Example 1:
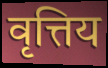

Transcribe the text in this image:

वृत्तिय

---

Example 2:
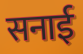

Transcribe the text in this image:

सनाई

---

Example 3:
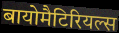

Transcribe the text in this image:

बायोमैटिरियल्स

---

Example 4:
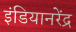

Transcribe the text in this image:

इंडियानरेंद्र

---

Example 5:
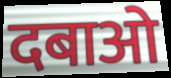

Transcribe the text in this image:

दबाओ